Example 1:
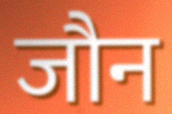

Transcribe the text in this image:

जौन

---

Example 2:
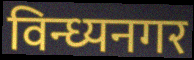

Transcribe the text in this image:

विन्ध्यनगर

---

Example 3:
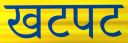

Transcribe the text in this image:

खटपट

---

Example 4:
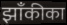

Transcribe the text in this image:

झाँकीका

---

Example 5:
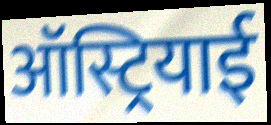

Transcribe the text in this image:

ऑस्ट्रियाई